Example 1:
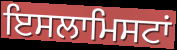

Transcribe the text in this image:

ਇਸਲਾਮਿਸਟਾਂ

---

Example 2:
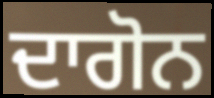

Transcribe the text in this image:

ਦਾਗੋਨ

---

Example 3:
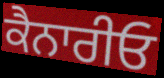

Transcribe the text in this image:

ਕੈਨਾਰੀਓ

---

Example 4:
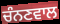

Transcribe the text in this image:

ਚੰਨਣਵਾਲ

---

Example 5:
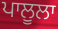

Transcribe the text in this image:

ਪਾਲੂਲਾ